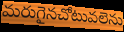
మరుగైనచోటువలెను